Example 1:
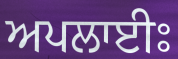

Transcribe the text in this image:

ਅਪਲਾਈਃ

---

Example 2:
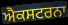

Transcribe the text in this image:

ਐਕਸਟਰਨਾ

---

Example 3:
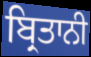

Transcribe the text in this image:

ਬ੍ਰਿਤਾਨੀ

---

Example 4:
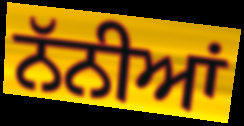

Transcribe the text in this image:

ਨੱਨੀਆਂ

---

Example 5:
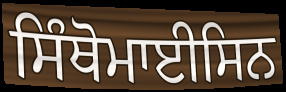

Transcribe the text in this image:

ਸਿੰਥੋਮਾਈਸਿਨ